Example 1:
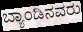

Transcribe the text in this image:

ಬ್ಯಾಂಡಿನವರು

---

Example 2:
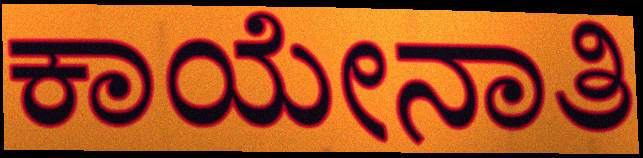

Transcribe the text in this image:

ಕಾಯೇನಾತಿ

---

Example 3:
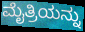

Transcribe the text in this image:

ಮೈತ್ರಿಯನ್ನು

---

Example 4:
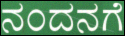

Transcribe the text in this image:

ನಂದನಗೆ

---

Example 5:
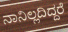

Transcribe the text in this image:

ನಾನಿಲ್ಲದಿದ್ದರೆ